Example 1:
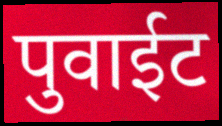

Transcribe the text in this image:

पुवाईट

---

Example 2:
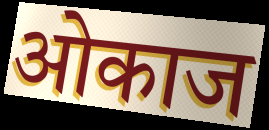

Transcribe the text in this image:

ओकाज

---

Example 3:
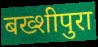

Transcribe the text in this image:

बख्शीपुरा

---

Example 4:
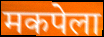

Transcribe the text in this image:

मकपेला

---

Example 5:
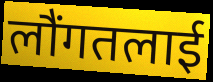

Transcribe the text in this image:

लौंगतलाई